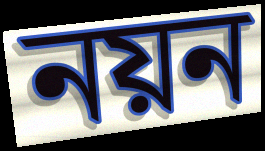
নয়ন